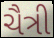
ચૈત્રી